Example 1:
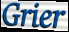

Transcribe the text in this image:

Grier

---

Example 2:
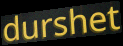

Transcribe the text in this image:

durshet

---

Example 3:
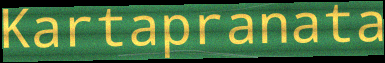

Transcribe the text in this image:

Kartapranata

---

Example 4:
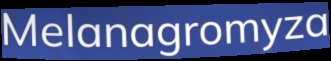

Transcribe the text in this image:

Melanagromyza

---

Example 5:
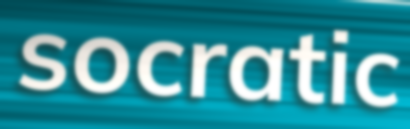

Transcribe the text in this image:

socratic